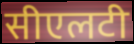
सीएलटी